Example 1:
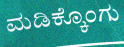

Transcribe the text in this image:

ಮಡಿಕ್ಕೊಂಗು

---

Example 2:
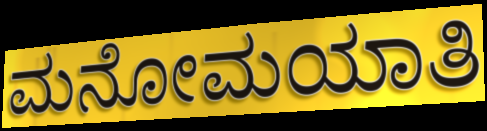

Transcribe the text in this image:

ಮನೋಮಯಾತಿ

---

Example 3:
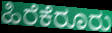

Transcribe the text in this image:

ಹಿರೆಕೆರೂರು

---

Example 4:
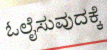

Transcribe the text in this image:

ಓಲೈಸುವುದಕ್ಕೆ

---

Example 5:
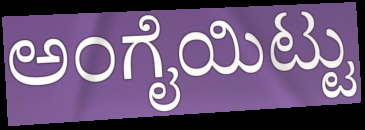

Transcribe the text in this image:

ಅಂಗೈಯಿಟ್ಟು